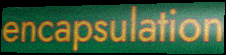
encapsulation